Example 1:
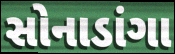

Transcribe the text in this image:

સોનાડાંગા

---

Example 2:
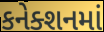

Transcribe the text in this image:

કનેક્શનમાં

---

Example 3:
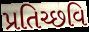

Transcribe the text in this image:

પ્રતિચ્છવિ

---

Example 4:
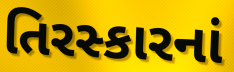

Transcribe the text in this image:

તિરસ્કારનાં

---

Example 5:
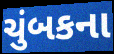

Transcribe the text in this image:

ચુંબકના